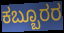
ಕಬ್ಬೂರರ